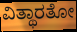
ವಿತ್ಥಾರತೋ